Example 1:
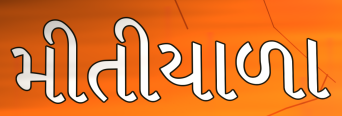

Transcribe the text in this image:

મીતીયાળા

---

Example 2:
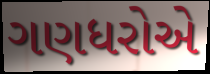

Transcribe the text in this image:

ગણધરોએ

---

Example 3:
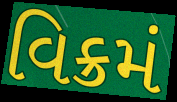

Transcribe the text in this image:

વિક્રમં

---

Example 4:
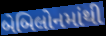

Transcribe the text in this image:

બેબિલોનમાંથી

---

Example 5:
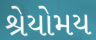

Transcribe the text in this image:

શ્રેયોમય